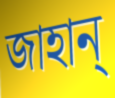
জাহান্